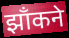
झाँकने